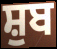
ਸ਼ੁਬ